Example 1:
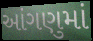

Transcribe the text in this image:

આંગણુમાં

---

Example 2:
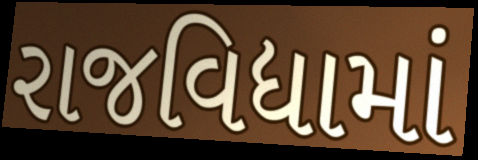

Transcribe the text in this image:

રાજવિદ્યામાં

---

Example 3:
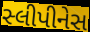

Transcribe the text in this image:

સ્લીપીનેસ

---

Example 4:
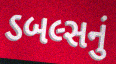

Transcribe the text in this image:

ડબલ્સનું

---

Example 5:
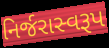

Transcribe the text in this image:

નિર્જરાસ્વરૂપ